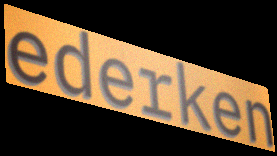
ederken